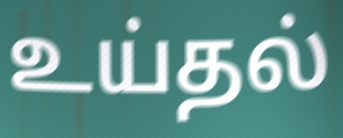
உய்தல்